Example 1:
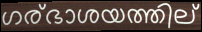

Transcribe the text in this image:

ഗര്ഭാശയത്തില്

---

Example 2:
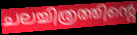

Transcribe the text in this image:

ചലച്ചിത്രത്തിന്റെ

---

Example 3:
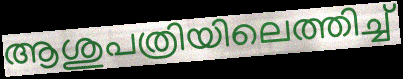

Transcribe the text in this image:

ആശുപത്രിയിലെത്തിച്ച്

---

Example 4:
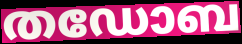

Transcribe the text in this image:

തഡോബ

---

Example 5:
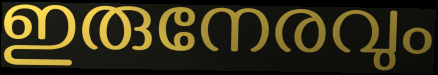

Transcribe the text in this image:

ഇരുനേരവും